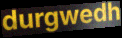
durgwedh